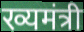
ख्यमंत्री